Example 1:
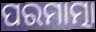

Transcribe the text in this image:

ପରମାତ୍ମା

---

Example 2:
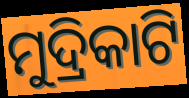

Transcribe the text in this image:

ମୁଦ୍ରିକାଟି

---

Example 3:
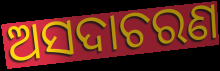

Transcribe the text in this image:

ଅସଦାଚରଣ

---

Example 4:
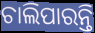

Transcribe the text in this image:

ଚାଲିପାରନ୍ତି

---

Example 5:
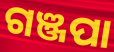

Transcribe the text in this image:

ଗଞ୍ଜପା